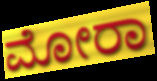
ಮೋರಾ